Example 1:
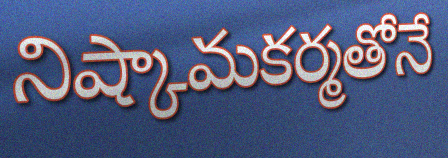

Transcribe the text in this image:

నిష్కామకర్మతోనే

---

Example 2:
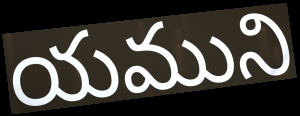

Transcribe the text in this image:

యముని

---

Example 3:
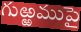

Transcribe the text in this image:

గుఱ్ఱముపై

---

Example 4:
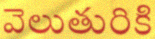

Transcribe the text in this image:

వెలుతురికి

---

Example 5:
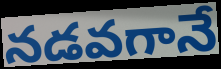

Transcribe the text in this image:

నడవగానే